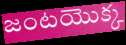
జంటయొక్క